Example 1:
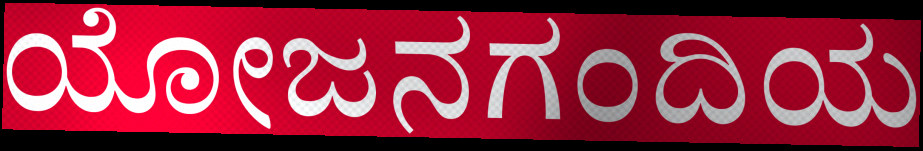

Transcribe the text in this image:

ಯೋಜನಗಂದಿಯ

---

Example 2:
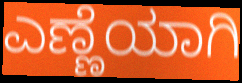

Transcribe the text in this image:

ಎಣ್ಣೆಯಾಗಿ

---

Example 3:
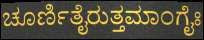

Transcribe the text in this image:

ಚೂರ್ಣಿತೈರುತ್ತಮಾಂಗೈಃ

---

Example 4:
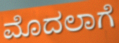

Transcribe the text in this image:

ಮೊದಲಾಗೆ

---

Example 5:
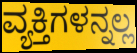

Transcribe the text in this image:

ವ್ಯಕ್ತಿಗಳನ್ನಲ್ಲ